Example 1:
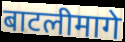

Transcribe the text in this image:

बाटलीमागे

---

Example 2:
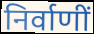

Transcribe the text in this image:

निर्वाणीं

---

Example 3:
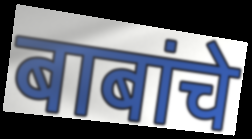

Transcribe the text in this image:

बाबांचे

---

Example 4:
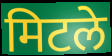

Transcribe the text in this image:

मिटले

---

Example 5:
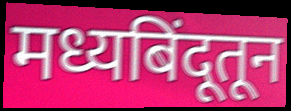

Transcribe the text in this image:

मध्यबिंदूतून